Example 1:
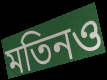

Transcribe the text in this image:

মতিনও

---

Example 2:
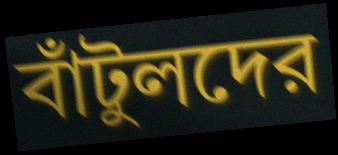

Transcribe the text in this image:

বাঁটুলদের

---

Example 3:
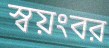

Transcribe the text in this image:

স্বয়ংবর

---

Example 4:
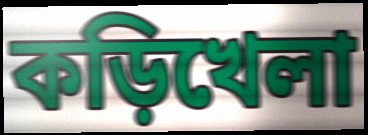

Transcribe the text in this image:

কড়িখেলা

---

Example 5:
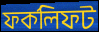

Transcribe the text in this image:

ফর্কলিফট